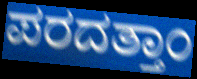
ಪರದತ್ತಾಂ